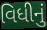
વિધીનું